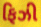
ફિઝી